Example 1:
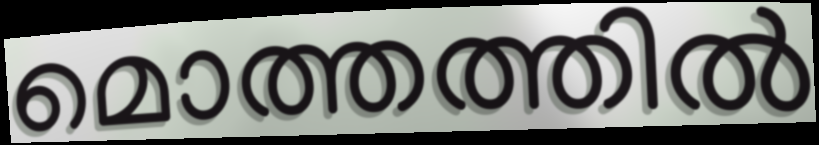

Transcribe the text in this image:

മൊത്തത്തിൽ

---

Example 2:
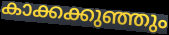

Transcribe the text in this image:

കാക്കക്കുഞ്ഞും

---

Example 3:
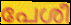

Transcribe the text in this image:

പേശീ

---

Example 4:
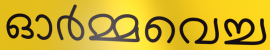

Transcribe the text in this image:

ഓർമ്മവെച്ച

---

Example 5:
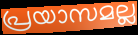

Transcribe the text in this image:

പ്രയാസമല്ല